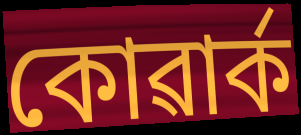
কোৱাৰ্ক